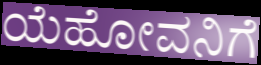
ಯೆಹೋವನಿಗೆ